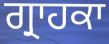
ਗ੍ਰਾਹਕਾ